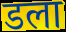
डला